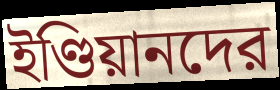
ইণ্ডিয়ানদের